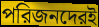
পরিজনদেরই